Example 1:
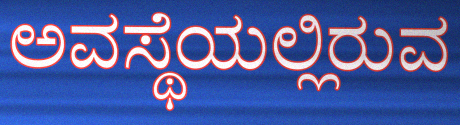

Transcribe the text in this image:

ಅವಸ್ಥೆಯಲ್ಲಿರುವ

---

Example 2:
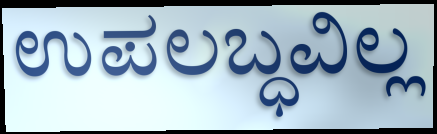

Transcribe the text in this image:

ಉಪಲಬ್ಧವಿಲ್ಲ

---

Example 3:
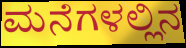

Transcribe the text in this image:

ಮನೆಗಳಲ್ಲಿನ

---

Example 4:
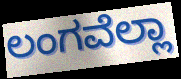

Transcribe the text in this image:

ಲಂಗವೆಲ್ಲಾ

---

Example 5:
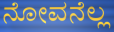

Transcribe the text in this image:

ನೋವನೆಲ್ಲ